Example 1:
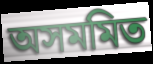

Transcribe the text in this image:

অসমমিত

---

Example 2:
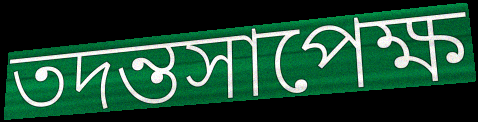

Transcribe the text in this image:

তদন্তসাপেক্ষ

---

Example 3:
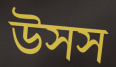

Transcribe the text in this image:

উসস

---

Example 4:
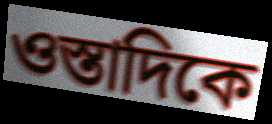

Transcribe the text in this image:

ওস্তাদিকে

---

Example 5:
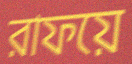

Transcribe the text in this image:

রাফয়ে